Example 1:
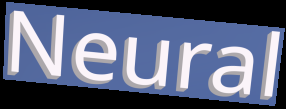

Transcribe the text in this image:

Neural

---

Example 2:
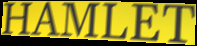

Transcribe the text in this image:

HAMLET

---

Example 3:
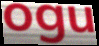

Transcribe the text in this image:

ogu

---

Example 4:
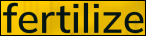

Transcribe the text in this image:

fertilize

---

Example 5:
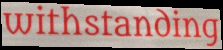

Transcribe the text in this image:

withstanding